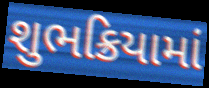
શુભક્રિયામાં